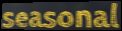
seasonal